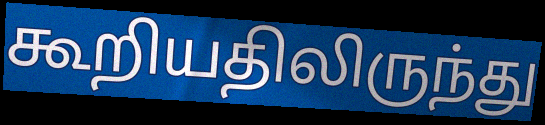
கூறியதிலிருந்து